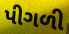
પીગળી